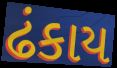
ઢંકાય